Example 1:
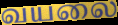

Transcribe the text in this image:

வயலை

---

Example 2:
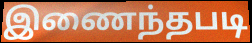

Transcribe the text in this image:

இணைந்தபடி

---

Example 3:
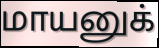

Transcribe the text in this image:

மாயனுக்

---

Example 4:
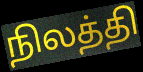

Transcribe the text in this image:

நிலத்தி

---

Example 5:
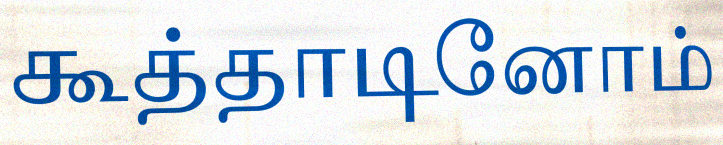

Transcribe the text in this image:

கூத்தாடினோம்